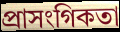
প্ৰাসংগিকতা